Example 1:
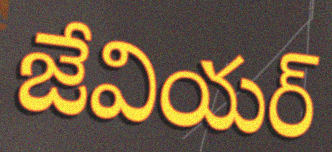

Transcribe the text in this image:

జేవియర్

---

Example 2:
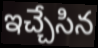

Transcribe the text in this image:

ఇచ్చేసిన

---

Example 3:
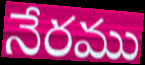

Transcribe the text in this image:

నేరము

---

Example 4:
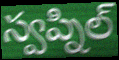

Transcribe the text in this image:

స్వప్నిల్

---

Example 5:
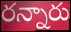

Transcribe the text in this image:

రన్నారు